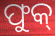
ଫୁକ୍